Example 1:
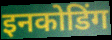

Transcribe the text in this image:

इनकोडिंग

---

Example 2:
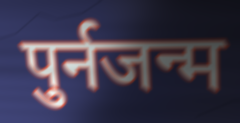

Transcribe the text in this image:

पुर्नजन्म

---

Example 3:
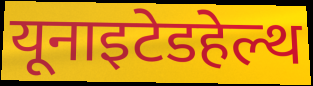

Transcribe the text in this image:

यूनाइटेडहेल्थ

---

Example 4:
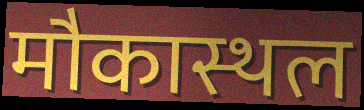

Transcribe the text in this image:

मौकास्थल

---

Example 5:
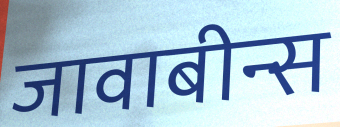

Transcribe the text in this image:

जावाबीन्स